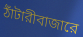
ঠাঁটারীবাজারে